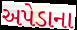
અપેડાના